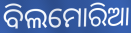
ବିଲମୋରିଆ